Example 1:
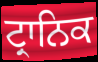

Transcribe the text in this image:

ਟ੍ਰਾਨਿਕ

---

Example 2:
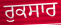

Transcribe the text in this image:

ਰੁਕਸਾਰ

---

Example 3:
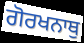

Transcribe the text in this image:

ਗੋਰਖਨਾਥੁ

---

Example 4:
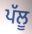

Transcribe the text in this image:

ਪੱਲੂ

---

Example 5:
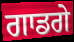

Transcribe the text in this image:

ਗਾਡਗੇ